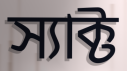
স্যাক্ট